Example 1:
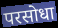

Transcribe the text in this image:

परसोधा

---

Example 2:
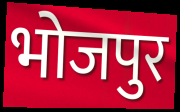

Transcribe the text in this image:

भोजपुर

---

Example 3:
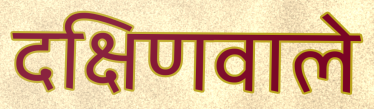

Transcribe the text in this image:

दक्षिणवाले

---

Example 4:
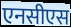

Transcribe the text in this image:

एनसीएस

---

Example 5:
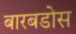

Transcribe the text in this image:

बारबडोस